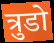
त्रुडो